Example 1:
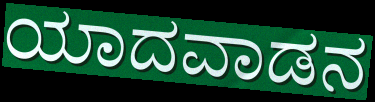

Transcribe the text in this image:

ಯಾದವಾಡನ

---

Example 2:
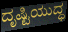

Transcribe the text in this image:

ದೃಷ್ಟಿಯುದ್ಧ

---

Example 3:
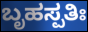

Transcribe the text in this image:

ಬೃಹಸ್ಪತಿಃ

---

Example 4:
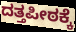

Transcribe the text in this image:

ದತ್ತಪೀಠಕ್ಕೆ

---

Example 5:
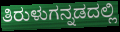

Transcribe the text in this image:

ತಿರುಳುಗನ್ನಡದಲ್ಲಿ